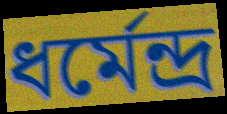
ধর্মেন্দ্র